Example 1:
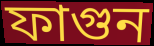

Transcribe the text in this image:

ফাগুন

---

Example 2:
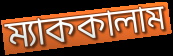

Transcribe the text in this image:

ম্যাককালাম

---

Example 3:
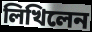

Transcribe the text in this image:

লিখিলেন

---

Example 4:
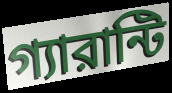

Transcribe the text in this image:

গ্যারান্টি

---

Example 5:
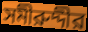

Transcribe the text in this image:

সমীরুদ্দীর